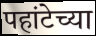
पहांटेच्या